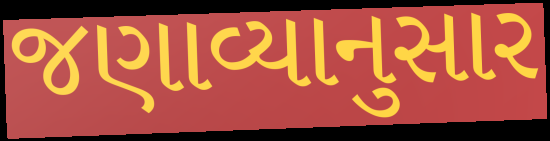
જણાવ્યાનુસાર